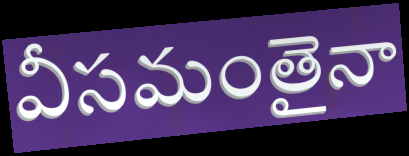
వీసమంతైనా